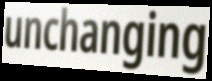
unchanging